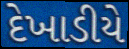
દેખાડીયે